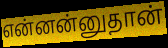
என்னன்னுதான்